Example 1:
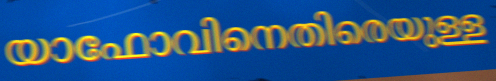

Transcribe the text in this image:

യാഫോവിനെതിരെയുള്ള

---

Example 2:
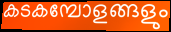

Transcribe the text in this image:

കടകമ്പോളങ്ങളും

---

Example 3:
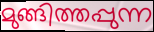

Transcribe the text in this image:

മുങ്ങിത്തപ്പുന്ന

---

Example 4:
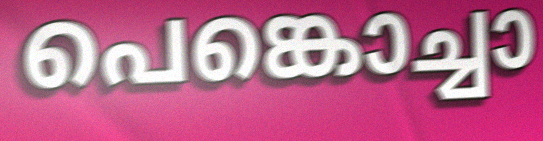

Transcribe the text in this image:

പെങ്കൊച്ചാ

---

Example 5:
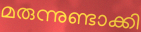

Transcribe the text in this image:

മരുന്നുണ്ടാക്കി